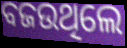
ବଜଉଥିଲେ